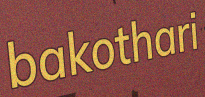
bakothari